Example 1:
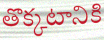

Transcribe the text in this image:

తొక్కటానికి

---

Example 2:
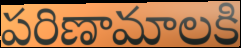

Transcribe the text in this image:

పరిణామాలకి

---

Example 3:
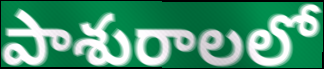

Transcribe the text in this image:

పాశురాలలో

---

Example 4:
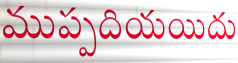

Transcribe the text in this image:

ముప్పదియయిదు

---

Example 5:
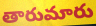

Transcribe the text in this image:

తారుమారు